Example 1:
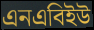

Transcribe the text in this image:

এনএবিইউ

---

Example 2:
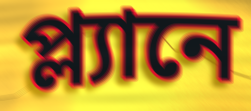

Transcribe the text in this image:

প্ল্যানে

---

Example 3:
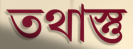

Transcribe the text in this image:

তথাস্তু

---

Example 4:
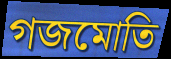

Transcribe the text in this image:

গজমোতি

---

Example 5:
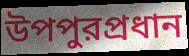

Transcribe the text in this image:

উপপুরপ্রধান